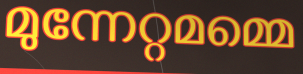
മുന്നേറ്റമമ്മെ